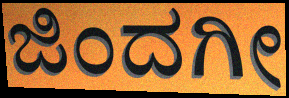
ಜಿಂದಗೀ